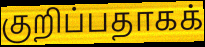
குறிப்பதாகக்